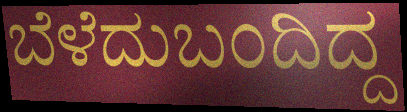
ಬೆಳೆದುಬಂದಿದ್ದ